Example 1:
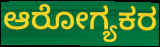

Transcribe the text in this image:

ಆರೋಗ್ಯಕರ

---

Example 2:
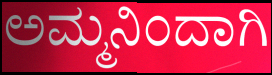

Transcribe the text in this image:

ಅಮ್ಮನಿಂದಾಗಿ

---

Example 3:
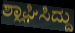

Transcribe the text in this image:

ಶ್ಲಾಘಿಸಿದ್ದು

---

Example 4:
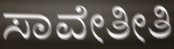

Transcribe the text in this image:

ಸಾವೇತೀತಿ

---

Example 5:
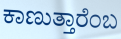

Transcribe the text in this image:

ಕಾಣುತ್ತಾರೆಂಬ